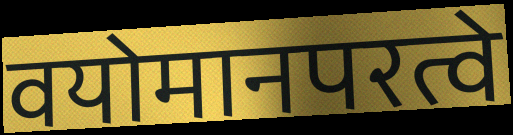
वयोमानपरत्वे